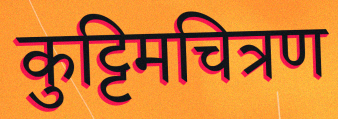
कुट्टिमचित्रण